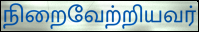
நிறைவேற்றியவர்